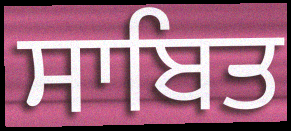
ਸਾਬਿਤ